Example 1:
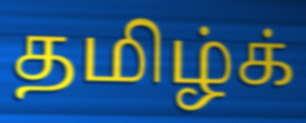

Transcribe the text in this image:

தமிழ்க்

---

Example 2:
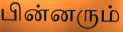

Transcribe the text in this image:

பின்னரும்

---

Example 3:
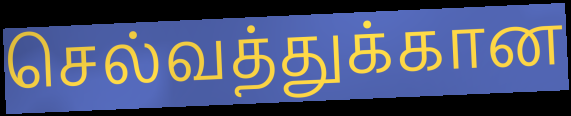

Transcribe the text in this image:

செல்வத்துக்கான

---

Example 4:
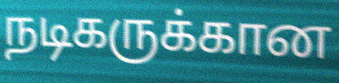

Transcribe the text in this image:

நடிகருக்கான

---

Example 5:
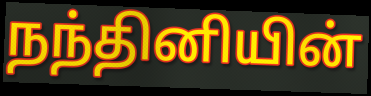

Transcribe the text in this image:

நந்தினியின்